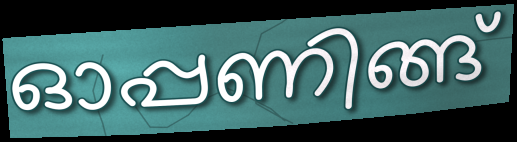
ഓപ്പണിങ്ങ്